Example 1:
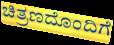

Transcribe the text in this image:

ಚಿತ್ರಣದೊಂದಿಗೆ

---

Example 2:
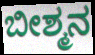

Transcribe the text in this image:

ಬೀಶ್ಮನ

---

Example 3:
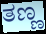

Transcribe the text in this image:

ತಣ್ಣ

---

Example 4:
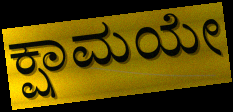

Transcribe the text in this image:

ಕ್ಷಾಮಯೇ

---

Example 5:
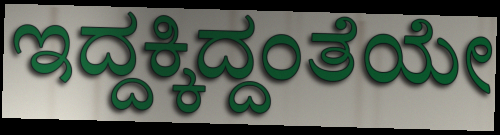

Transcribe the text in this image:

ಇದ್ದಕ್ಕಿದ್ದಂತೆಯೇ